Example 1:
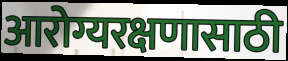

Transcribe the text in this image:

आरोग्यरक्षणासाठी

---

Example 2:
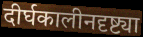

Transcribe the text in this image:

दीर्घकालीनदृष्ट्या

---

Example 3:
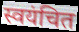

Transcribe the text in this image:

स्वयंचित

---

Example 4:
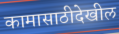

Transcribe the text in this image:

कामासाठीदेखील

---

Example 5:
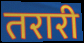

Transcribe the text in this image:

तरारी